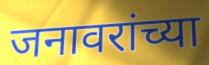
जनावरांच्या